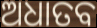
ଅଧାତବ